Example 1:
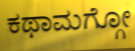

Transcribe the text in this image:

ಕಥಾಮಗ್ಗೋ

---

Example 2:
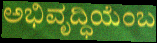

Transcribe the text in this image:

ಅಭಿವೃದ್ಧಿಯೆಂಬ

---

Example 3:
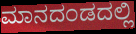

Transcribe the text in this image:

ಮಾನದಂಡದಲ್ಲಿ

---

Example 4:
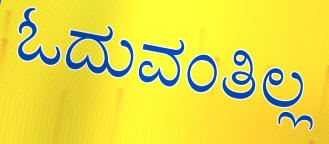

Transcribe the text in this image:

ಓದುವಂತಿಲ್ಲ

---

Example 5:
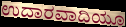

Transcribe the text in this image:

ಉದಾರವಾದಿಯೂ